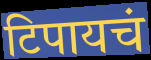
टिपायचं